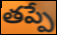
తప్పే